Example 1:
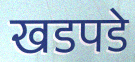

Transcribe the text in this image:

खडपडे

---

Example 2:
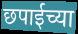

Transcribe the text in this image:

छपाईच्या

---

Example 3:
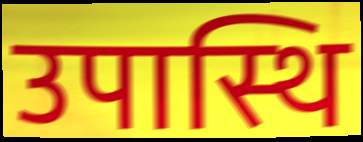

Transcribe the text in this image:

उपास्थि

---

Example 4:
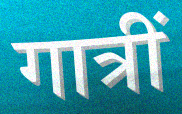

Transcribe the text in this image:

गात्रीं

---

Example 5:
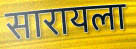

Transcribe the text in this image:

सारायला